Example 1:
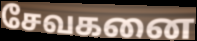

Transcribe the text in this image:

சேவகனை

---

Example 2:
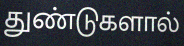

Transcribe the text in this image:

துண்டுகளால்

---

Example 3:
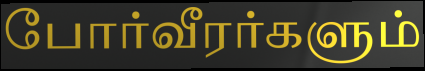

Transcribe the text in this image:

போர்வீரர்களும்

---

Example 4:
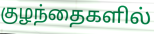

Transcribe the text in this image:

குழந்தைகளில்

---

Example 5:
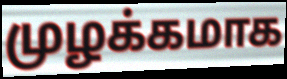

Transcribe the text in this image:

முழக்கமாக